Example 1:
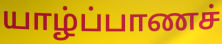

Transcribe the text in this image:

யாழ்ப்பாணச்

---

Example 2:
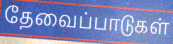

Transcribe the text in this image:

தேவைப்பாடுகள்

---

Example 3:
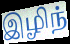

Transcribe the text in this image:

இழிந்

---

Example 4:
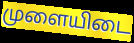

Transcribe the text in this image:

முளையிடை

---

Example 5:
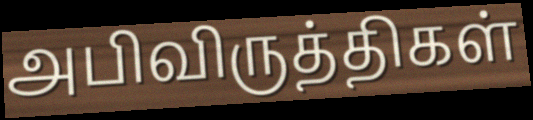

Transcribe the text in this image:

அபிவிருத்திகள்